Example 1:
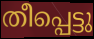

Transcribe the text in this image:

തീപ്പെട്ടു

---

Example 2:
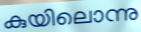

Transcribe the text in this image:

കുയിലൊന്നു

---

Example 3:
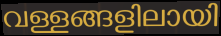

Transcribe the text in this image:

വള്ളങ്ങളിലായി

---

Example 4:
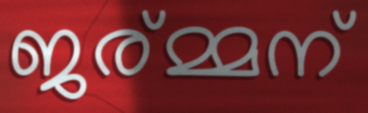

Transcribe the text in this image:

ജര്മ്മന്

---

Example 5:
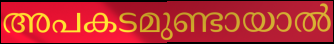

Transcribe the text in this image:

അപകടമുണ്ടായാൽ